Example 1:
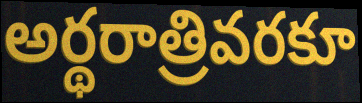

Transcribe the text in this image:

అర్థరాత్రివరకూ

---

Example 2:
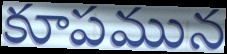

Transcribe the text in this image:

కూపమున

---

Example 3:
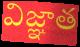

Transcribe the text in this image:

విజ్ఞాత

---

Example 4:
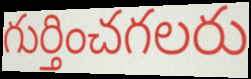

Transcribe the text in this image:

గుర్తించగలరు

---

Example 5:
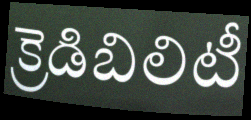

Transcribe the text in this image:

క్రెడిబిలిటీ